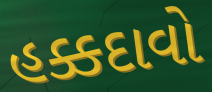
હક્કદાવો